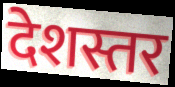
देशस्तर